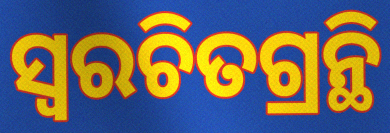
ସ୍ଵରଚିତଗ୍ରନ୍ଥି